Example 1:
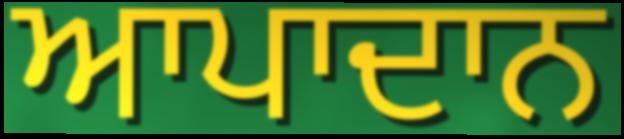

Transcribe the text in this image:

ਆਪਾਦਾਨ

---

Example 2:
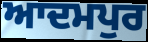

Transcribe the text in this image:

ਆਦਮਪੁਰ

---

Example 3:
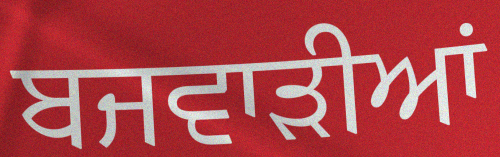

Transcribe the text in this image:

ਬਜਵਾੜੀਆਂ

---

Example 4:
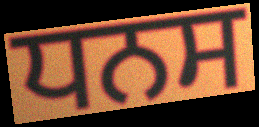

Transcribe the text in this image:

ਧਨਸ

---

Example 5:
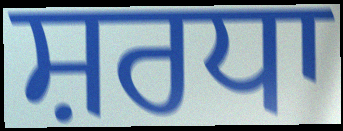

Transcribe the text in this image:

ਸ਼ਰਧਾ